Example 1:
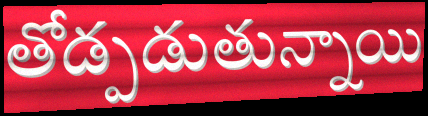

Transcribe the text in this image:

తోడ్పడుతున్నాయి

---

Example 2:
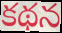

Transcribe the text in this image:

కథన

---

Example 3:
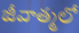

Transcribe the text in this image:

జీవాత్మలో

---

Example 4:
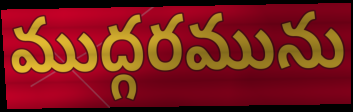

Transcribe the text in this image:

ముద్గరమును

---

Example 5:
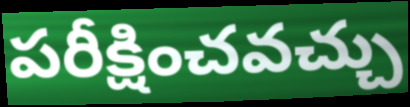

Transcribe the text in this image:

పరీక్షించవచ్చు